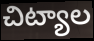
చిట్యాల